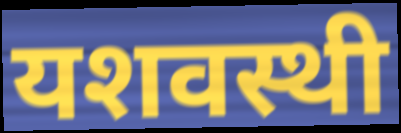
यशवस्थी